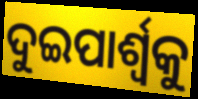
ଦୁଇପାର୍ଶ୍ବକୁ